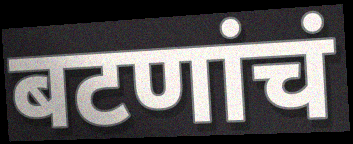
बटणांचं